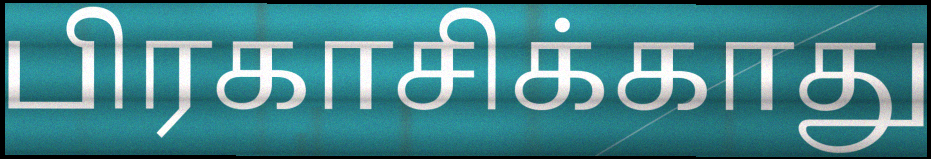
பிரகாசிக்காது